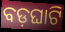
ବଡ଼ଘାଟି